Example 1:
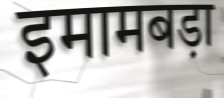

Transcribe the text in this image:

इमामबड़ा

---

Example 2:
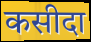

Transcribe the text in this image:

कसीदा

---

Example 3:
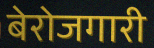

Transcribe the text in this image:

बेरोजगारी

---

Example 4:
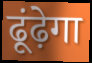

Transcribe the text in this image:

ढूंढ़ेगा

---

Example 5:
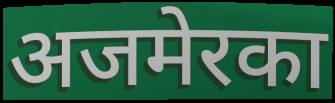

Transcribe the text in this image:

अजमेरका